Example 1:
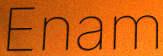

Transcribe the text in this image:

Enam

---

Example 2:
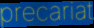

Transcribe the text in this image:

precariat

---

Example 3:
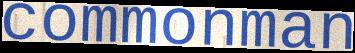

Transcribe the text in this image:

commonman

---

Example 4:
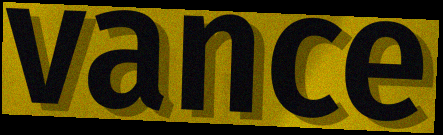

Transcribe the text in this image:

vance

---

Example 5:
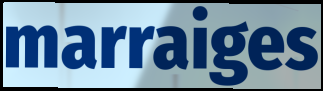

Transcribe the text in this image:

marraiges